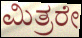
ಮಿತ್ರರೇ